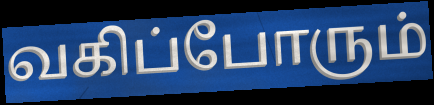
வகிப்போரும்